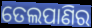
ତେଲପାଣିର